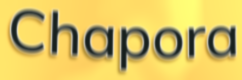
Chapora